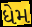
ધેમ